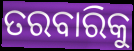
ତରବାରିକୁ